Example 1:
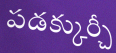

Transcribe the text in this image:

పడక్కుర్చీ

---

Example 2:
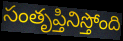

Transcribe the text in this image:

సంతృప్తినిస్తోంది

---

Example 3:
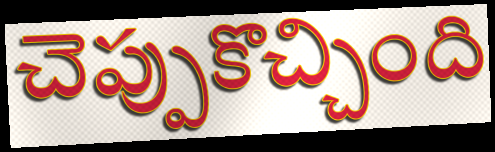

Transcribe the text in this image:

చెప్పుకొచ్చింది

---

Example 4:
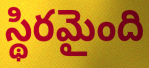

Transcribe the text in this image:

స్థిరమైంది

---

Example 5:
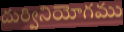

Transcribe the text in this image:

దుర్వినియోగము